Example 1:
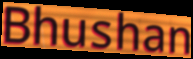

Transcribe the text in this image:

Bhushan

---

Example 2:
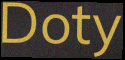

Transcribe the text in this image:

Doty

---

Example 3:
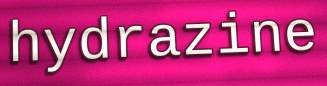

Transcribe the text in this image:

hydrazine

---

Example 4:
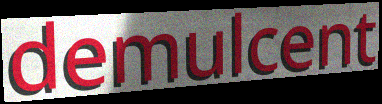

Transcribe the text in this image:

demulcent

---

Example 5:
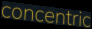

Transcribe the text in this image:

concentric